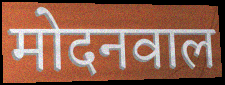
मोदनवाल